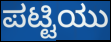
ಪಟ್ಟಿಯು